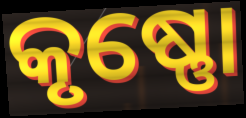
କୃଷ୍ଣୋ